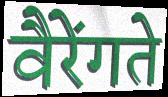
वैरेंगते